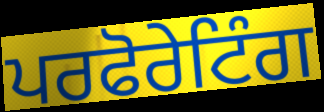
ਪਰਫੋਰੇਟਿੰਗ